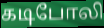
கடிபோலி